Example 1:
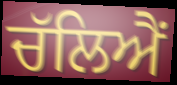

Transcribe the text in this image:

ਚੱਲਿਐਂ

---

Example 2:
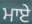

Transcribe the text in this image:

ਮਾਏ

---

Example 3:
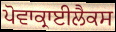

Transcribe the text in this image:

ਪੋਵਾਕ੍ਰਾਈਲੈਕਸ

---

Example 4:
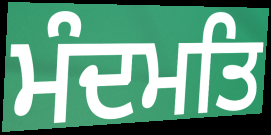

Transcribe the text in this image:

ਮੰਦਮਤਿ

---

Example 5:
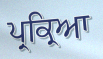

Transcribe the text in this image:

ਪ੍ਰਕ੍ਰਿਆ